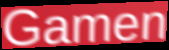
Gamen